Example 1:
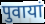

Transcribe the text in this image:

पुवायां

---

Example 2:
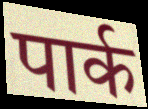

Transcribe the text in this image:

पार्क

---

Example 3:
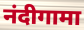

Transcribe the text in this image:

नंदीगामा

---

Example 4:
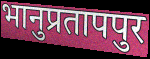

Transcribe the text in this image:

भानुप्रतापपुर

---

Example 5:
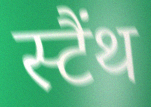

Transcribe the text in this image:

स्टैंथ